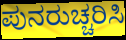
ಪುನರುಚ್ಚರಿಸಿ